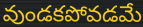
వుండకపోవడమే